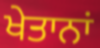
ਖੇਤਾਨਾਂ